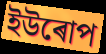
ইউৰোপ